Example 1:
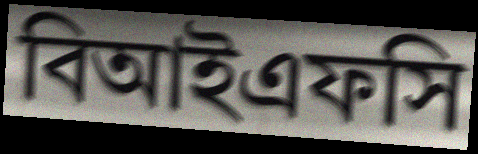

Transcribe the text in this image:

বিআইএফসি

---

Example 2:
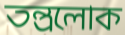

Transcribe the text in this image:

তন্ত্রলোক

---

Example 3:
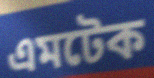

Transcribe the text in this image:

এমটেক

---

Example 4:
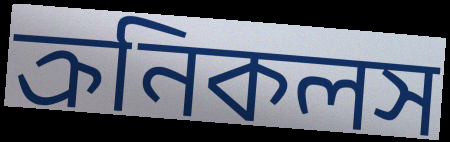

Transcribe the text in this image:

ক্রনিকলস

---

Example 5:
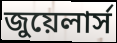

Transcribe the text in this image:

জুয়েলার্স